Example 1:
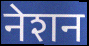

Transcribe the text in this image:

नेशन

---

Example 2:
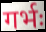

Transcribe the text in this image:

गर्भः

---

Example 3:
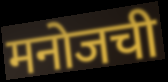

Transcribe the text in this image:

मनोजची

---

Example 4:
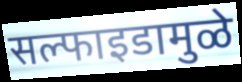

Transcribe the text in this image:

सल्फाइडामुळे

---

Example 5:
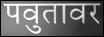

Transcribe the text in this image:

पवुतावर